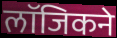
लॉजिकने